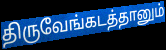
திருவேங்கடத்தானும்